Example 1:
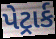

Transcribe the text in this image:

પેટ્રાર્ક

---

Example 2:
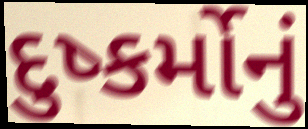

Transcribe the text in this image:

દુષ્કર્મોનું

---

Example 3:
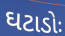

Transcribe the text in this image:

ઘટાડોઃ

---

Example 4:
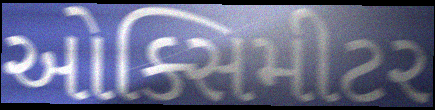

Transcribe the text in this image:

ઓક્સિમીટર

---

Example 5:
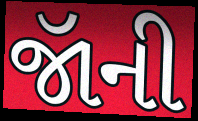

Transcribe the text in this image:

જૉની